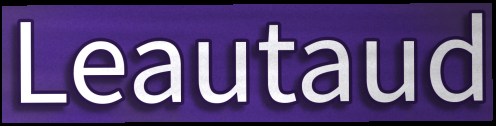
Leautaud